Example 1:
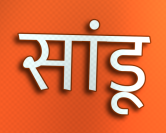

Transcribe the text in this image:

सांडू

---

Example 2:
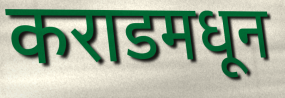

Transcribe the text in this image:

कराडमधून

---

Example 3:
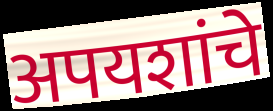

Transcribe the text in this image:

अपयशांचे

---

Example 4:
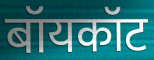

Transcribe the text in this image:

बॉयकॉट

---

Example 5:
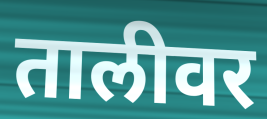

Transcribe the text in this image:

तालीवर